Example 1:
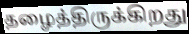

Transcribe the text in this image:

தழைத்திருக்கிறது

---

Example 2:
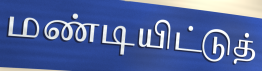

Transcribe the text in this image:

மண்டியிட்டுத்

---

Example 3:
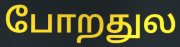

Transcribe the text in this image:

போறதுல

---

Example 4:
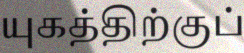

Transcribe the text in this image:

யுகத்திற்குப்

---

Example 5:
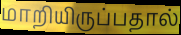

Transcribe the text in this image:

மாறியிருப்பதால்